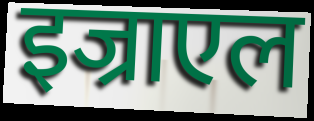
इज्राएल